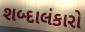
શબ્દાલંકારો